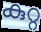
കുറ്റ